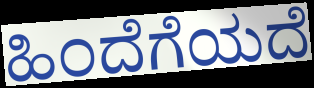
ಹಿಂದೆಗೆಯದೆ